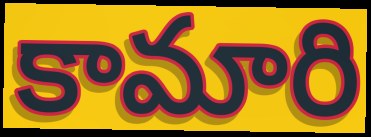
కామారి